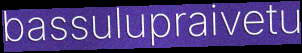
bassulupraivetu